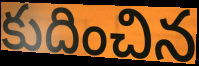
కుదించిన